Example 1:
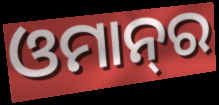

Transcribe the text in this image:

ଓମାନ୍‌ର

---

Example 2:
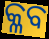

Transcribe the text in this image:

କ୍ଳବ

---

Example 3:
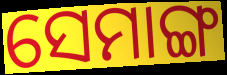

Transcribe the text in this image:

ସେମାଙ୍ଗ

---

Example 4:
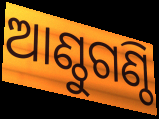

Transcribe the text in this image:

ଆଣ୍ଠୁଗଣ୍ଠି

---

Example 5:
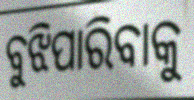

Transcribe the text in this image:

ବୁଝିପାରିବାକୁ